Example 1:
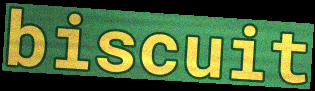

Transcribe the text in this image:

biscuit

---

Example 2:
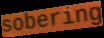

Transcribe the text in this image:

sobering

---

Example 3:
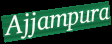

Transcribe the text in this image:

Ajjampura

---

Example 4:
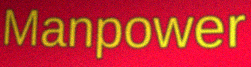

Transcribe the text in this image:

Manpower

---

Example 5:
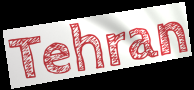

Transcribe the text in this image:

Tehran